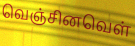
வெஞ்சினவெள்